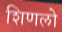
शिणलो